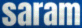
saram